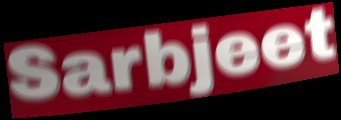
Sarbjeet